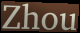
Zhou